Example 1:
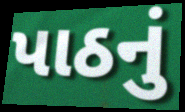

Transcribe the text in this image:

પાઠનું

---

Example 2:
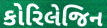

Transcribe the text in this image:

કોરિલેજિન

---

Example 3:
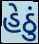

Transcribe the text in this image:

હેઠું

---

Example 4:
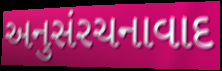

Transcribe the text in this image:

અનુસંરચનાવાદ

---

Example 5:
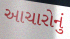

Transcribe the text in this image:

આચારોનું